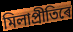
মিলাপ্ৰীতিৰে